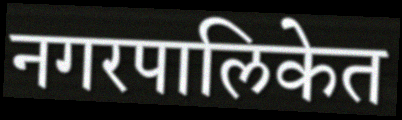
नगरपालिकेत